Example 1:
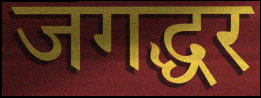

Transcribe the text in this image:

जगद्धर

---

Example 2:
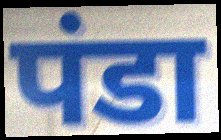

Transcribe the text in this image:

पंडा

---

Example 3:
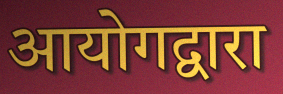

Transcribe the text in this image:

आयोगद्वारा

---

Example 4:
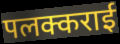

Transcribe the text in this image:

पलक्कराई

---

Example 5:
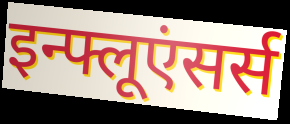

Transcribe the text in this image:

इन्फ्लूएंसर्स